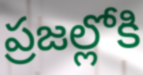
ప్రజల్లోకి